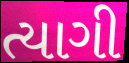
ત્યાગી